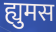
ह्युमस